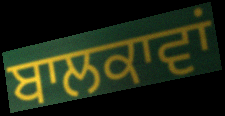
ਬਾਲਕਾਵਾਂ